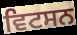
ਵਿਟਸਨ